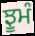
ਝੂਮੰ